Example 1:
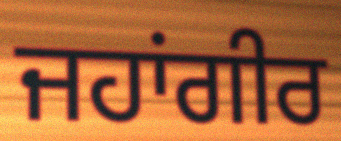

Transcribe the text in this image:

ਜਹਾਂਗੀਰ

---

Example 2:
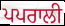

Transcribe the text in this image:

ਪਪਰਾਲੀ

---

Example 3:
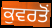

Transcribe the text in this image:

ਕੁਵਰਤੋਂ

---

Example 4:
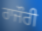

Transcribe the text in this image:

ਰਾਜੌਰੀ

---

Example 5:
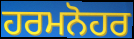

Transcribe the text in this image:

ਹਰਮਨੋਹਰ